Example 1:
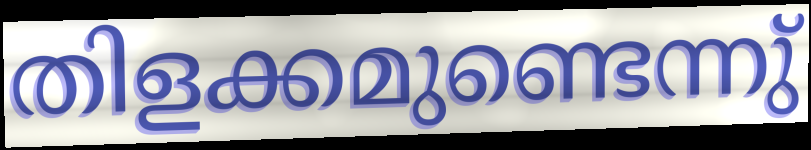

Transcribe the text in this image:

തിളക്കമുണ്ടെന്നു്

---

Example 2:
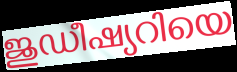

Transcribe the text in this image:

ജുഡീഷ്യറിയെ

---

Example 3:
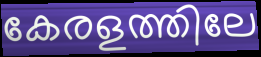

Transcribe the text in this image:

കേരളത്തിലേ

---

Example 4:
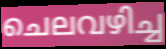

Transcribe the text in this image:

ചെലവഴിച്ച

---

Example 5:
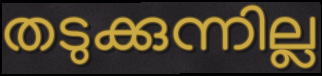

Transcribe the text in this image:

തടുക്കുന്നില്ല